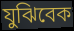
যুঝিবেক